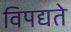
विपद्यते